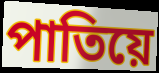
পাতিয়ে